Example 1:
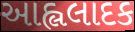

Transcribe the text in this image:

આહ્લલાદક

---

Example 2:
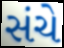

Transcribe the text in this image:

સંચે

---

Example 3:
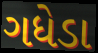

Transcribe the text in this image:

ગધેડા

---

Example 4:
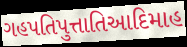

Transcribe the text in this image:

ગહપતિપુત્તાતિઆદિમાહ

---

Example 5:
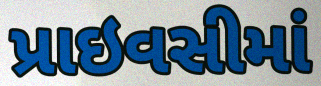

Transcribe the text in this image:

પ્રાઇવસીમાં